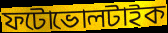
ফটোভোলটাইক